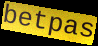
betpas